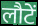
लौटें